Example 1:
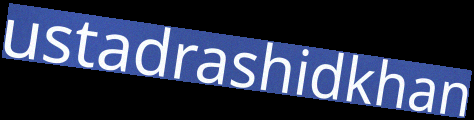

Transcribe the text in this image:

ustadrashidkhan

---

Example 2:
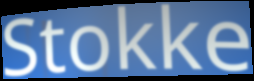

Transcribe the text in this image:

Stokke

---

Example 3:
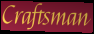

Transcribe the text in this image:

Craftsman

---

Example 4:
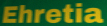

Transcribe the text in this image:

Ehretia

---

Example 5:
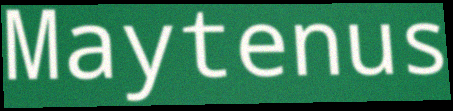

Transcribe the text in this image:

Maytenus